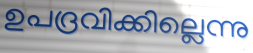
ഉപദ്രവിക്കില്ലെന്നു